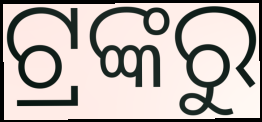
ଟ୍ରଙ୍କରୁ